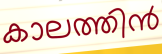
കാലത്തിൻ